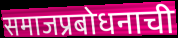
समाजप्रबोधनाची